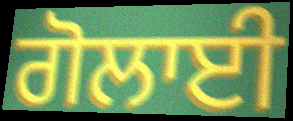
ਗੋਲਾਈ